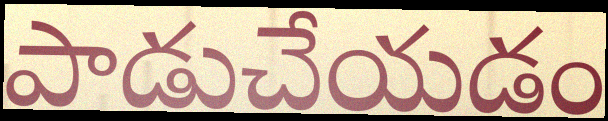
పాడుచేయడం